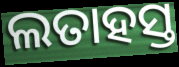
ଲତାହସ୍ତ